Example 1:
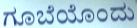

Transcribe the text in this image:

ಗೂಬೆಯೊಂದು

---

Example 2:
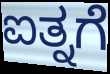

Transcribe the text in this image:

ಐತ್ನಗೆ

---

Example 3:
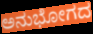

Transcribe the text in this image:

ಅನುಭೋಗದ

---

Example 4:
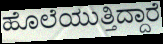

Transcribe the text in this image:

ಹೊಲೆಯುತ್ತಿದ್ದಾರೆ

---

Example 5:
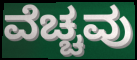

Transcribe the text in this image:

ವೆಚ್ಚವು